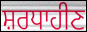
ਸ਼ਰਧਾਹੀਣ